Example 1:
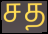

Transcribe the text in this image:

சத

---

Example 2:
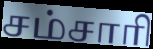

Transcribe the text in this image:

சம்சாரி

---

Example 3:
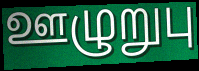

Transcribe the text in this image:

ஊழுறுபு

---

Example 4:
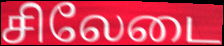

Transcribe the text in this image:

சிலேடை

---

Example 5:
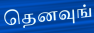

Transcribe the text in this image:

தெனவுங்